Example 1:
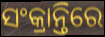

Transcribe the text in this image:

ସଂକ୍ରାନ୍ତିରେ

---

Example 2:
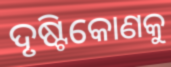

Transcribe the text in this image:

ଦୃଷ୍ଟିକୋଣକୁ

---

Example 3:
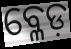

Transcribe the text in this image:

ବ୍ଳେଡ଼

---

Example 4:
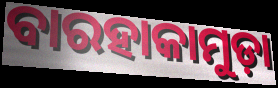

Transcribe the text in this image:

ବାରହାକାମୁଡ଼ା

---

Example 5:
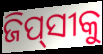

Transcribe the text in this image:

ଜିପ୍‌ସୀକୁ